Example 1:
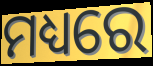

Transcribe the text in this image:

ମଧ୍ଯରେ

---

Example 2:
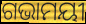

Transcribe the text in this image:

ଗଭାମୟୀ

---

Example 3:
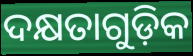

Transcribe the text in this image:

ଦକ୍ଷତାଗୁଡ଼ିକ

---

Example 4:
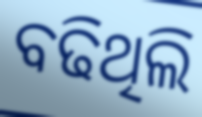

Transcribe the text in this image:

ବଢିଥିଲି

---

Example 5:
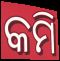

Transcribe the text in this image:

କମି